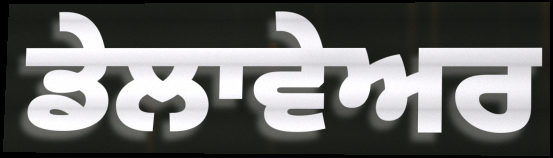
ਡੇਲਾਵੇਅਰ